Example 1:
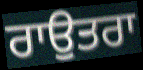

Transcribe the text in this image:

ਰਾਉਤਰਾ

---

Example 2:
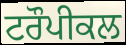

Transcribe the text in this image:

ਟਰੌਪੀਕਲ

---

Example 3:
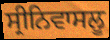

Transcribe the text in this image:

ਸ੍ਰੀਨਿਵਾਸਲੂ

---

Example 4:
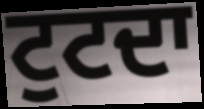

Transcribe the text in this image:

ਟੁਟਦਾ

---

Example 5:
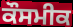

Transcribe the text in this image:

ਕੌਸਮੀਕ